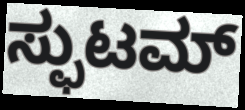
ಸ್ಫುಟಮ್